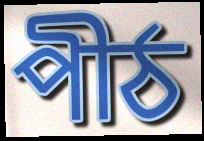
পীঠ